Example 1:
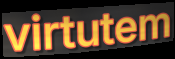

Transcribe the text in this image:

virtutem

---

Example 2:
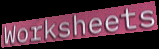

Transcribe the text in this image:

Worksheets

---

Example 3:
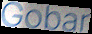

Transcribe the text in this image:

Gobar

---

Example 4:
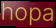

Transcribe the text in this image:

hopa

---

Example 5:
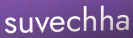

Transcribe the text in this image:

suvechha